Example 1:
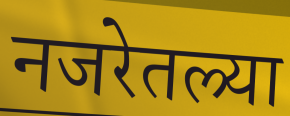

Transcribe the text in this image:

नजरेतल्या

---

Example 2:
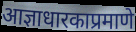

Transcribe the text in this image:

आज्ञाधारकाप्रमाणे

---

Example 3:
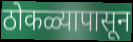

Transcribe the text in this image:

ठोकळ्यापासून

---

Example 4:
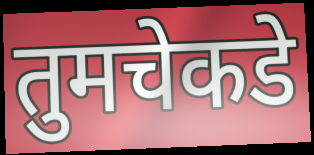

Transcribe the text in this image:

तुमचेकडे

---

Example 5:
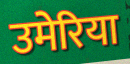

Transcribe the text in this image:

उमेरिया